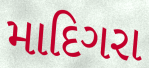
માદિગરા